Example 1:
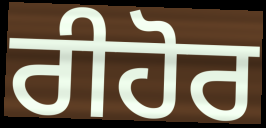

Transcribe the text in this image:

ਰੀਹੋਰ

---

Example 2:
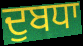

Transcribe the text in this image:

ਦੁਬਧਾ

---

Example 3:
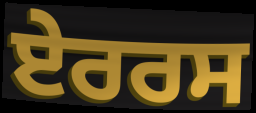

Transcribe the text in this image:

ਏਰਰਸ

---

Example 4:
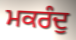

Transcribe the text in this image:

ਮਕਰੰਦੁ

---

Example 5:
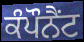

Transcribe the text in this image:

ਕੰਪੌਨੈਂਟ